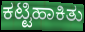
ಕಟ್ಟಿಹಾಕಿತು